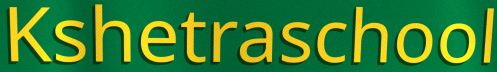
Kshetraschool